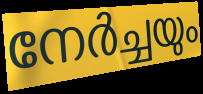
നേർച്ചയും